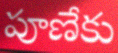
పూణేకు